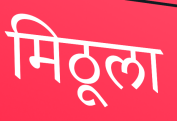
मिठूला